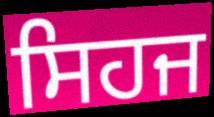
ਸਿਹਜ